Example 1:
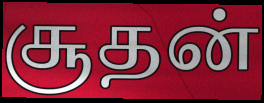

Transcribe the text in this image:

சூதன்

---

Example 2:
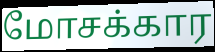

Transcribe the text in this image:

மோசக்கார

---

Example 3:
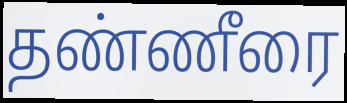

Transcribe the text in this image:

தண்ணீரை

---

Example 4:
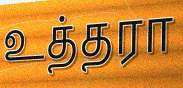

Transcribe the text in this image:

உத்தரா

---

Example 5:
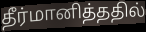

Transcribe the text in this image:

தீர்மானித்ததில்